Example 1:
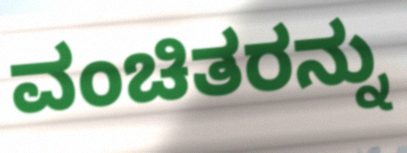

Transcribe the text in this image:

ವಂಚಿತರನ್ನು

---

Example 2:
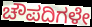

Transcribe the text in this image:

ಚೌಪದಿಗಳೇ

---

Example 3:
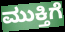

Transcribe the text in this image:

ಮುಕ್ತಿಗೆ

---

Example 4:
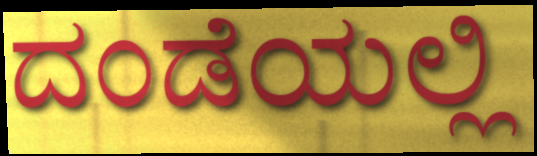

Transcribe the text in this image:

ದಂಡೆಯಲ್ಲಿ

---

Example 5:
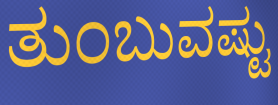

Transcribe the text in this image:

ತುಂಬುವಷ್ಟು